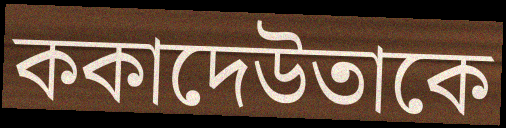
ককাদেউতাকে